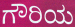
ಗೌರಿಯ